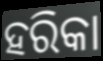
ହରିକା